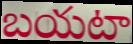
బయటా